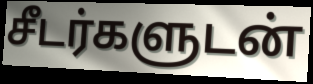
சீடர்களுடன்